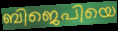
ബിജെപിയെ